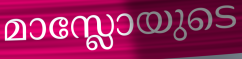
മാസ്ലോയുടെ